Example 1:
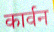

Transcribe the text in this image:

कार्वन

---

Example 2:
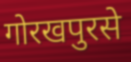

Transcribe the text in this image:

गोरखपुरसे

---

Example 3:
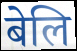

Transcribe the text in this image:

बेलि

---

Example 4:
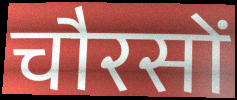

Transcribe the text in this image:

चौरसों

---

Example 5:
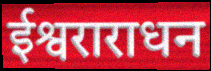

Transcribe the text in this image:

ईश्वराराधन